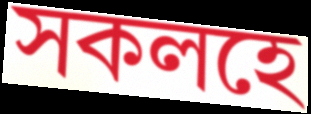
সকলহে